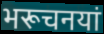
भरूचनयां